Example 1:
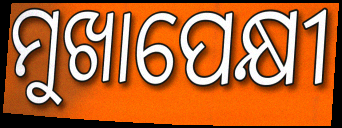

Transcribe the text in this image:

ମୁଖାପେକ୍ଷୀ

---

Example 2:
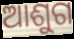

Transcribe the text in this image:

ଆଶୁଗ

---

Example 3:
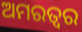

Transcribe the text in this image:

ଅମରତ୍ୱର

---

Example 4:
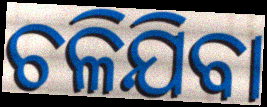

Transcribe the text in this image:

ଚଳିଯିବା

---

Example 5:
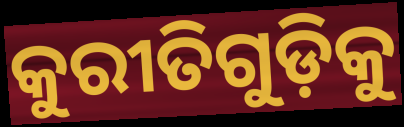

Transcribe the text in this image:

କୁରୀତିଗୁଡ଼ିକୁ